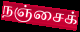
நஞ்சைக்